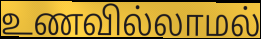
உணவில்லாமல்